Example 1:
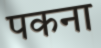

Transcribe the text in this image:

पकना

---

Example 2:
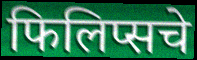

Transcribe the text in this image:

फिलिप्सचे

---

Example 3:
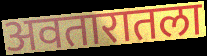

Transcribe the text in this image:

अवतारातला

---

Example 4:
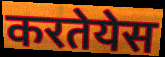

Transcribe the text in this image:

करतेयेस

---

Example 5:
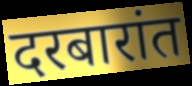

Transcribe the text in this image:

दरबारांत